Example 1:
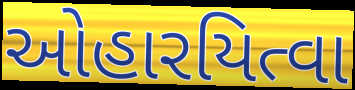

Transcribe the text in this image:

ઓહારયિત્વા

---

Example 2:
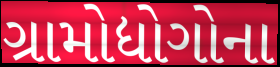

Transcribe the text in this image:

ગ્રામોદ્યોગોના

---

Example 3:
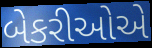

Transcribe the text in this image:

બેકરીઓએ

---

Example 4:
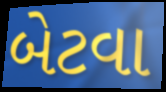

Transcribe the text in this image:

બેટવા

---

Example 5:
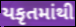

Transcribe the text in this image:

યકૃતમાંથી